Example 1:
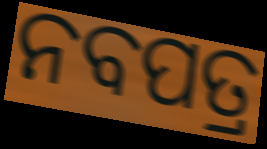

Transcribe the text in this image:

ନବପତ୍ର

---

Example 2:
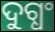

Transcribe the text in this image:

ଦୁଗ୍ଧଂ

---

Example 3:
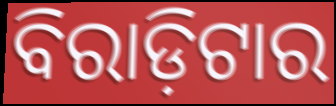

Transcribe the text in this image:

ବିରାଡ଼ିଟାର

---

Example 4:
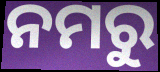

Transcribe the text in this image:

ନମରୁ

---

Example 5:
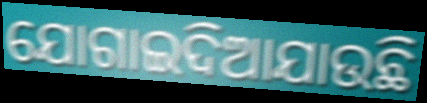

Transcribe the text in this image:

ଯୋଗାଇଦିଆଯାଉଛି